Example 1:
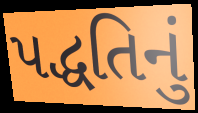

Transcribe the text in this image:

પદ્ધતિનું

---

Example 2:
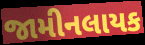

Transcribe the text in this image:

જામીનલાયક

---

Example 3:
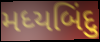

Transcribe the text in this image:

મધ્યબિંદુ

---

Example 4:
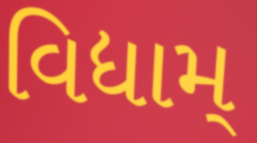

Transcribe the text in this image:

વિદ્યામ્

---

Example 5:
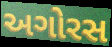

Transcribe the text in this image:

અગોરસ